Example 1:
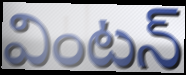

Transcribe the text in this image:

వింటన్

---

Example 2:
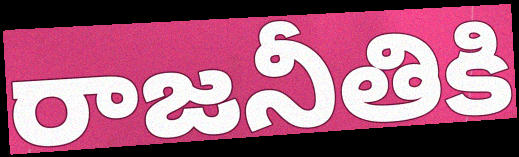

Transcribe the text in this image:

రాజనీతికి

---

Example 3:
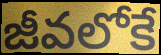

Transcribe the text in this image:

జీవలోకే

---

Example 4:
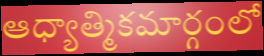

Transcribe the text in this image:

ఆధ్యాత్మికమార్గంలో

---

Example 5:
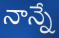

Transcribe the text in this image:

నాన్నే